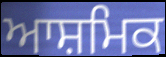
ਆਸ਼ਮਿਕ